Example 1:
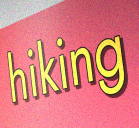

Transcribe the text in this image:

hiking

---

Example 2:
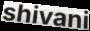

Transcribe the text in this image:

shivani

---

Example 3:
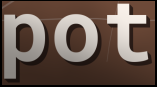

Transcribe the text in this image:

pot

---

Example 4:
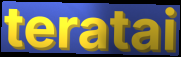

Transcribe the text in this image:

teratai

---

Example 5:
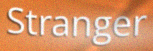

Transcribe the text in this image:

Stranger